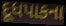
દૂધપાકના